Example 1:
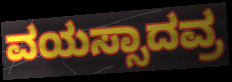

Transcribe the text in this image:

ವಯಸ್ಸಾದವ್ರ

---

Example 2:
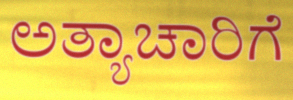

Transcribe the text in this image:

ಅತ್ಯಾಚಾರಿಗೆ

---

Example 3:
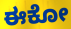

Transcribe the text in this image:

ಈಕೋ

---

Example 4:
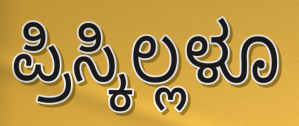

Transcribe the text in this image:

ಪ್ರಿಸ್ಕಿಲ್ಲಳೂ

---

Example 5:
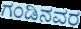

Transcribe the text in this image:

ಗಂಡಿನವರ